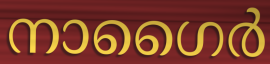
നാഗൈർ